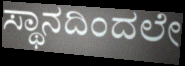
ಸ್ಥಾನದಿಂದಲೇ